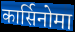
कार्सिनोमा